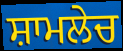
ਸ਼ਾਮਲੇਚ